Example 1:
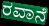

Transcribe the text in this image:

ರವಾನೆ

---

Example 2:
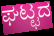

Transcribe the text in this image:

ಘಟ್ಟದ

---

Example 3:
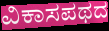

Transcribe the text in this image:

ವಿಕಾಸಪಥದ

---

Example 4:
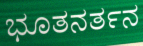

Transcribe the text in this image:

ಭೂತನರ್ತನ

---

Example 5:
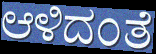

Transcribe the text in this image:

ಆಳಿದಂತೆ